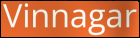
Vinnagar